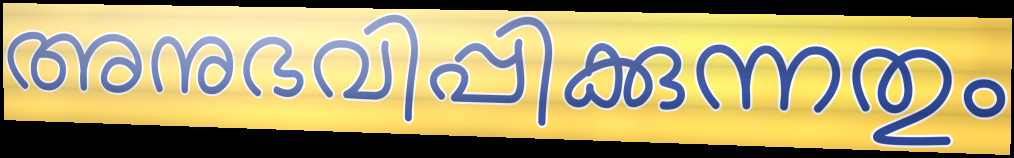
അനുഭവിപ്പിക്കുന്നതും